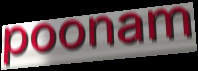
poonam